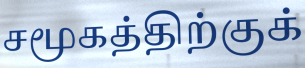
சமூகத்திற்குக்